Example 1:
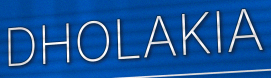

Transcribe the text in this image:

DHOLAKIA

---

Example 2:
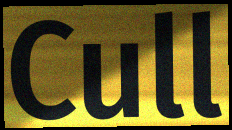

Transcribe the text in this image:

Cull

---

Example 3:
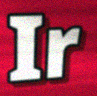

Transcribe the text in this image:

Ir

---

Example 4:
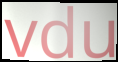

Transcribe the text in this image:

vdu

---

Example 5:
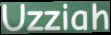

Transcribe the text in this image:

Uzziah